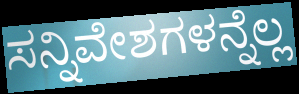
ಸನ್ನಿವೇಶಗಳನ್ನೆಲ್ಲ